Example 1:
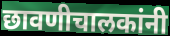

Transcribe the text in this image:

छावणीचालकांनी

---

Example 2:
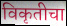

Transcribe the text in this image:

विकृतीचा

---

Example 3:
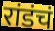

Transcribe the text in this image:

रांडंचं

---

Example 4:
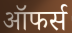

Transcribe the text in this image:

ऑफर्स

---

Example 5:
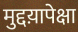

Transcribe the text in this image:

मुद्दय़ापेक्षा